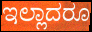
ಇಲ್ಲಾದರೂ